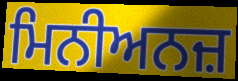
ਮਿਨੀਅਨਜ਼